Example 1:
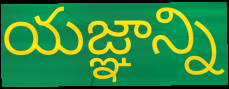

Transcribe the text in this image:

యజ్ఞాన్ని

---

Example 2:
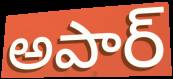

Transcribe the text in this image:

అపార్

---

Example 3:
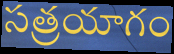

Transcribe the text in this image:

సత్రయాగం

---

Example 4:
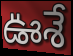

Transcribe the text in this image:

ఊశే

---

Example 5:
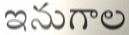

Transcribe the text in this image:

ఇనుగాల